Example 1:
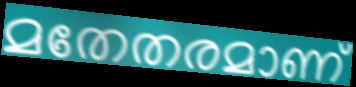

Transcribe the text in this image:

മതേതരമാണ്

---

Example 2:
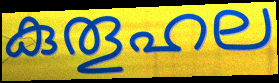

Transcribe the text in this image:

കുതൂഹല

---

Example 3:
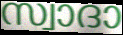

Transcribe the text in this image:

സ്വാദാ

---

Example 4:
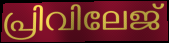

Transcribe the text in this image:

പ്രിവിലേജ്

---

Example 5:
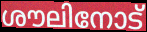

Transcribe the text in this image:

ശൗലിനോട്